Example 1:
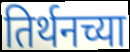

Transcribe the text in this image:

तिर्थनच्या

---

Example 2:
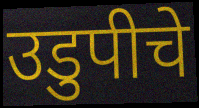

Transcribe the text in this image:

उडुपीचे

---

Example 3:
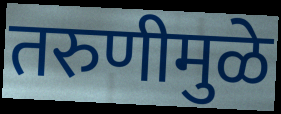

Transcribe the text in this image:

तरुणीमुळे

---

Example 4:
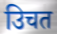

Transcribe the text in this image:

उिचत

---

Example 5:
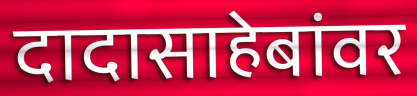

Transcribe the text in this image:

दादासाहेबांवर